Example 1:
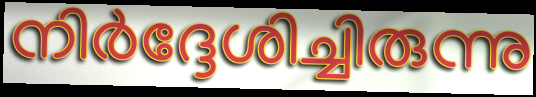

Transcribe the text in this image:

നിർദ്ദേശിച്ചിരുന്നു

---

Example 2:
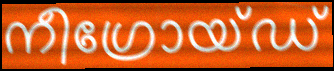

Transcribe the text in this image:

നീഗ്രോയ്ഡ്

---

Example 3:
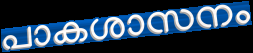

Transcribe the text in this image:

പാകശാസനം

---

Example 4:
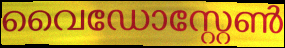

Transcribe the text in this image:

വൈഡോസ്റ്റേൺ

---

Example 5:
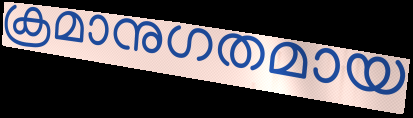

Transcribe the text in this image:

ക്രമാനുഗതമായ